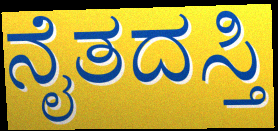
ನೈತದಸ್ತಿ